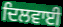
ਦਿਲਵਾਈ